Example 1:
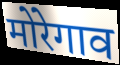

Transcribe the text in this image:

मोरेगाव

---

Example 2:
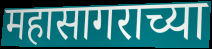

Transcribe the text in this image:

महासागराच्या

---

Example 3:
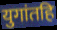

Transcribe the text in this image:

युगांतहि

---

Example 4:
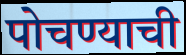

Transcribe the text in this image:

पोचण्याची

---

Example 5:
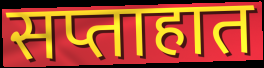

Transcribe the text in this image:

सप्ताहात